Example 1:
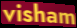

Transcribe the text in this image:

visham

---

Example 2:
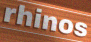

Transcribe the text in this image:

rhinos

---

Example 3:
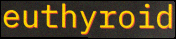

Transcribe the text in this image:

euthyroid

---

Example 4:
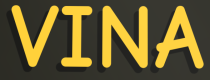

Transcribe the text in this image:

VINA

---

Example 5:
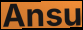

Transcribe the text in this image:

Ansu